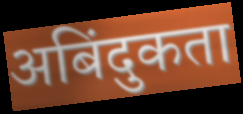
अबिंदुकता